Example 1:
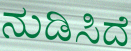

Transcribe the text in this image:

ನುಡಿಸಿದೆ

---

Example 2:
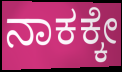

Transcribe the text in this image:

ನಾಕಕ್ಕೇ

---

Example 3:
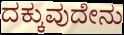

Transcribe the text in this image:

ದಕ್ಕುವುದೇನು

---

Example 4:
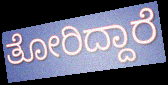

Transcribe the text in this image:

ತೋರಿದ್ದಾರೆ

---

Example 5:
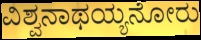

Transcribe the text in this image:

ವಿಶ್ವನಾಥಯ್ಯನೋರು